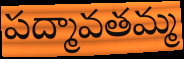
పద్మావతమ్మ